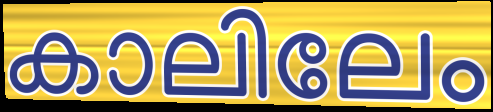
കാലിലേം